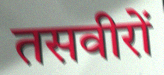
तसवीरों